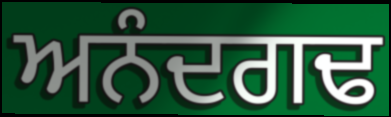
ਅਨੰਦਗਢ